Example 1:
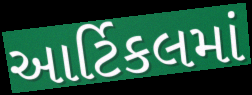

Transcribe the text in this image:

આર્ટિકલમાં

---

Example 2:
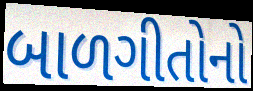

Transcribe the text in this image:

બાળગીતોનો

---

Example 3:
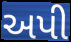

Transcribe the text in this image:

અપી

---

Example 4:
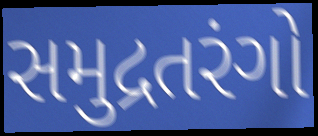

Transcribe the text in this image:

સમુદ્રતરંગો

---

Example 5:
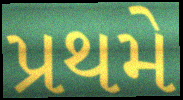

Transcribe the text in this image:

પ્રથમે